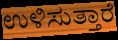
ಉಳಿಸುತ್ತಾರೆ